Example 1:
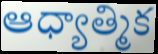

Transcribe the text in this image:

ఆధ్యాత్మిక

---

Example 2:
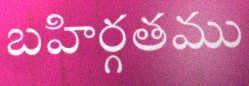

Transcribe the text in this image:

బహిర్గతము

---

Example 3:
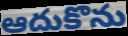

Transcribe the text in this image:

ఆదుకొను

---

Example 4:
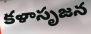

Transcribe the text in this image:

కళాసృజన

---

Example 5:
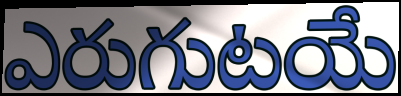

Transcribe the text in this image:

ఎరుగుటయే